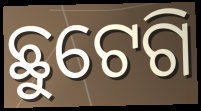
ଛୁଟେଗି